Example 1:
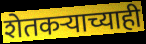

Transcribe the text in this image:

शेतकऱ्याच्याही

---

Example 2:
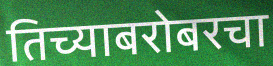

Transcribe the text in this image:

तिच्याबरोबरचा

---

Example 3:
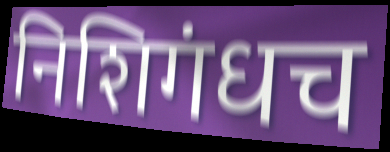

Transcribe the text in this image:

निशिगंधच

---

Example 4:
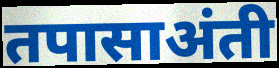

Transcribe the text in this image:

तपासाअंती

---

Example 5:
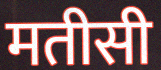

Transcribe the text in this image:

मतीसी